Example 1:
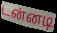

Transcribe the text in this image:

டன்னடி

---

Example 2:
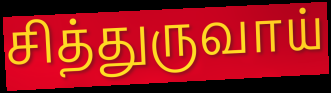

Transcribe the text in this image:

சித்துருவாய்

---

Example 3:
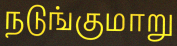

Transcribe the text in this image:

நடுங்குமாறு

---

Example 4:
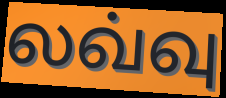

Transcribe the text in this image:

லவ்வு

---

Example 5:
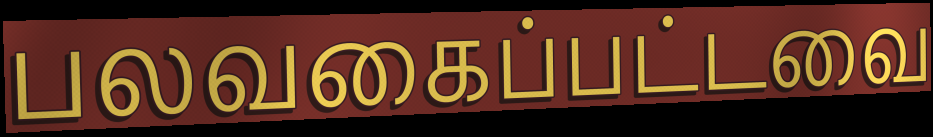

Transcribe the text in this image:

பலவகைப்பட்டவை